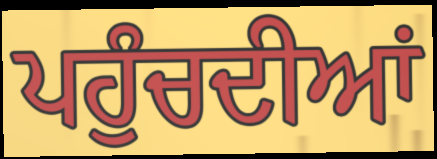
ਪਹੁੰਚਦੀਆਂ